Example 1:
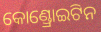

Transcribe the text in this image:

କୋଣ୍ଡ୍ରୋଇଟିନ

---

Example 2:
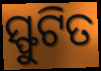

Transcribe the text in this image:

ସ୍ଫୁଟିତ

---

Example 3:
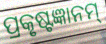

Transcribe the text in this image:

ପ୍ରକୃଷ୍ଟଜ୍ଞାନମ୍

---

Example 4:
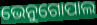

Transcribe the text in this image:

ଭେନୁଗୋପାଲ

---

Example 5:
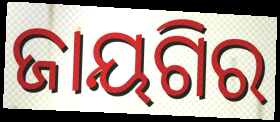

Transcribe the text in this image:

ଜାୟଗିର